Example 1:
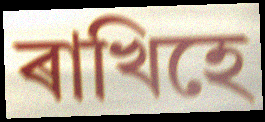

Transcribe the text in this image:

ৰাখিহে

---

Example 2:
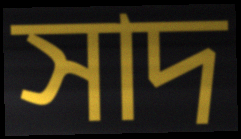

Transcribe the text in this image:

সাদ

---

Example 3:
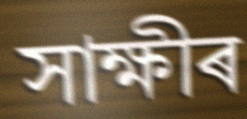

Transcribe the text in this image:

সাক্ষীৰ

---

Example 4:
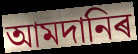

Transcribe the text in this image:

আমদানিৰ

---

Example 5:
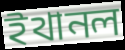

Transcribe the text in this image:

ইথানল